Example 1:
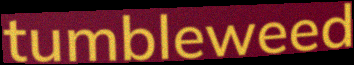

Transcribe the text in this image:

tumbleweed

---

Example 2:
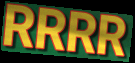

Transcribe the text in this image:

RRRR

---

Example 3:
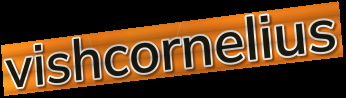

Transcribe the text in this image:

vishcornelius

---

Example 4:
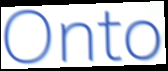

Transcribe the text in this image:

Onto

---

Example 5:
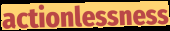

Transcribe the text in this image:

actionlessness